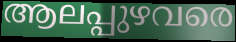
ആലപ്പുഴവരെ